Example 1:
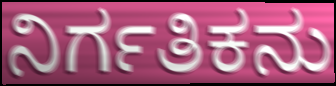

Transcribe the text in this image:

ನಿರ್ಗತಿಕನು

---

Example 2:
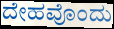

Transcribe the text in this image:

ದೇಹವೊಂದು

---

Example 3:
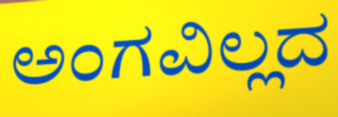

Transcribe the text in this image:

ಅಂಗವಿಲ್ಲದ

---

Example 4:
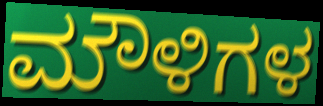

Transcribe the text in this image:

ಮೌಳಿಗಳ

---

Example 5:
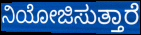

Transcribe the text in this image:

ನಿಯೋಜಿಸುತ್ತಾರೆ